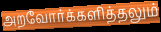
அறவோர்க்களித்தலும்